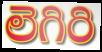
లెగిరి